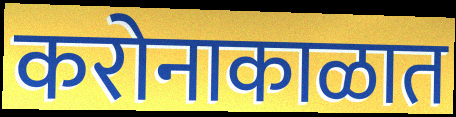
करोनाकाळात